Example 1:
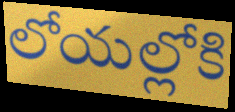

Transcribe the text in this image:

లోయల్లోకి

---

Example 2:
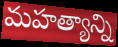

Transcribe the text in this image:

మహత్యాన్ని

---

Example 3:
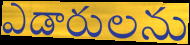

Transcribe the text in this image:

ఎడారులను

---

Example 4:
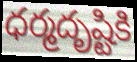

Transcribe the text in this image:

ధర్మదృష్టికి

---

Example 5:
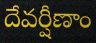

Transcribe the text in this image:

దేవర్షీణాం